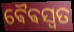
ଵୈଵସ୍ୱତ